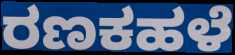
ರಣಕಹಳೆ